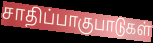
சாதிப்பாகுபாடுகள்